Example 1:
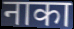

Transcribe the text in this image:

नाका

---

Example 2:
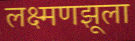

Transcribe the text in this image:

लक्ष्मणझूला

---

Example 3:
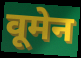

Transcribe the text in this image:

वूमेन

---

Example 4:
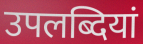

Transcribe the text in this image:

उपलब्दियां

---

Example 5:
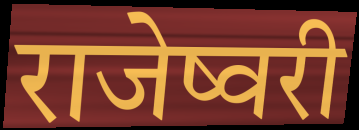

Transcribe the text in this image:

राजेष्वरी